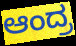
ಆಂದ್ರ